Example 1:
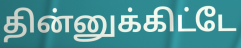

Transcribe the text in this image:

தின்னுக்கிட்டே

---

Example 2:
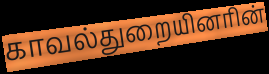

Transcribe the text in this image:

காவல்துறையினரின்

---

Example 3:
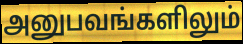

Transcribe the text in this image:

அனுபவங்களிலும்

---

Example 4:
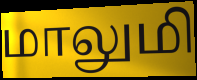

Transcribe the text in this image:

மாலுமி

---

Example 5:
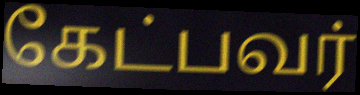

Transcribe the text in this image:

கேட்பவர்